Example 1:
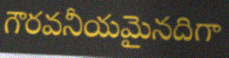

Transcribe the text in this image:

గౌరవనీయమైనదిగా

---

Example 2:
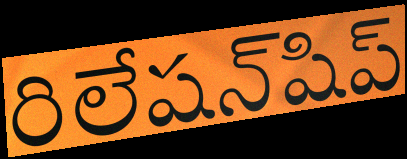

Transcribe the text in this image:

రిలేషన్‌షిప్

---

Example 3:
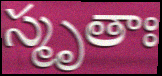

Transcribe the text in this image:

స్మృతాః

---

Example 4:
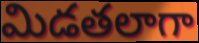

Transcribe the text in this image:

మిడతలాగా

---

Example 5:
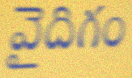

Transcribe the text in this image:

వైదిగం